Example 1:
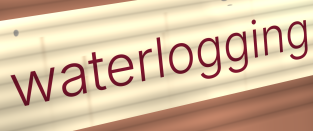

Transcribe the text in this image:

waterlogging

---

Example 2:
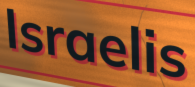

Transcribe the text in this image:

Israelis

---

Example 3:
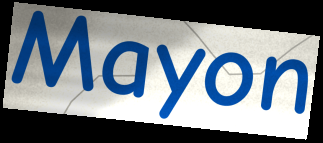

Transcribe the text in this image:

Mayon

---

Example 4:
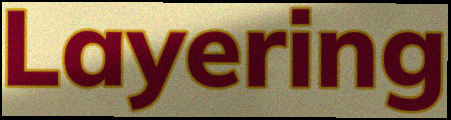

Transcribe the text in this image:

Layering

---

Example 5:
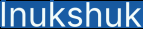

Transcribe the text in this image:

Inukshuk